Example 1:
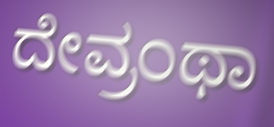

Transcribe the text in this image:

ದೇವ್ರಂಥಾ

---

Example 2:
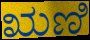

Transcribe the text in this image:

ಋಣಿ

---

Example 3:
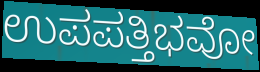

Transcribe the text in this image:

ಉಪಪತ್ತಿಭವೋ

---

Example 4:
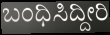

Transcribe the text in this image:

ಬಂಧಿಸಿದ್ದೀರಿ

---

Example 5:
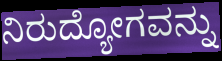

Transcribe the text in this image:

ನಿರುದ್ಯೋಗವನ್ನು